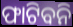
ଫାଟିବନି